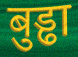
बुड्ढा